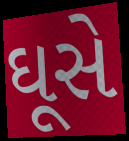
ઘૂસે